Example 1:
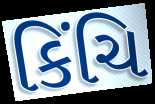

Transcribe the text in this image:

કિંચિ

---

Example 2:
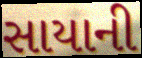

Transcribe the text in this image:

સાયાની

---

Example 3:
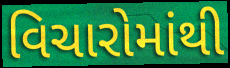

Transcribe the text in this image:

વિચારોમાંથી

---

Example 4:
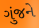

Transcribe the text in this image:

ગુંજને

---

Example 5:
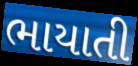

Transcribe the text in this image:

ભાયાતી